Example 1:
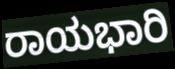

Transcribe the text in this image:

ರಾಯಭಾರಿ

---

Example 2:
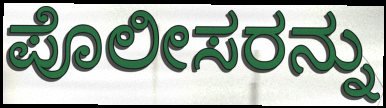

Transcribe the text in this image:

ಪೊಲೀಸರನ್ನು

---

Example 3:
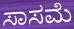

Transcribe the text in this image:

ಸಾಸಮೆ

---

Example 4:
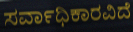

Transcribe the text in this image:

ಸರ್ವಾಧಿಕಾರವಿದೆ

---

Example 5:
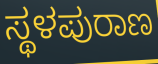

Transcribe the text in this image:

ಸ್ಥಳಪುರಾಣ